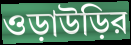
ওড়াউড়ির